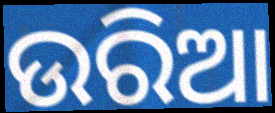
ଉରିଆ